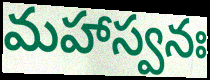
మహాస్వనః